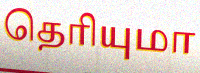
தெரியுமா